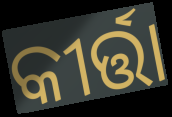
କୀର୍ତ୍ତା